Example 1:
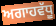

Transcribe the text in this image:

ਅਗਾਹਵੱਧੂ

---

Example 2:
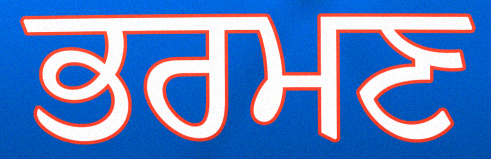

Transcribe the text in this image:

ਭਰਮਣ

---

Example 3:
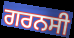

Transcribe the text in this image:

ਗਰਨਸੀ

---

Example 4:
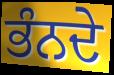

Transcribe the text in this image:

ਭੰਨਦੇ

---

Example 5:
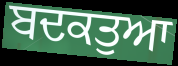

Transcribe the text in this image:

ਬਦਕਤੁਆ